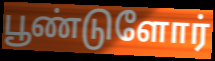
பூண்டுளோர்